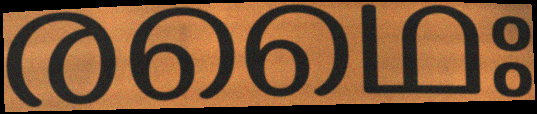
രഥൈഃ